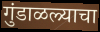
गुंडाळल्याचा